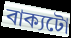
বাক্যটো